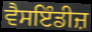
ਵੈਸਇੰਡੀਜ਼